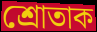
শ্ৰোতাক